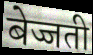
बेज्जती